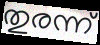
തുരന്ന്